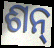
ଶନ୍